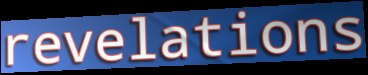
revelations